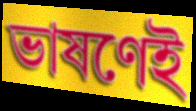
ভাষণেই